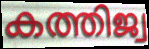
കത്തിജ്വ